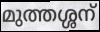
മുത്തശ്ശന്